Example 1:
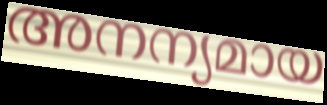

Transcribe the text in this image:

അനന്യമായ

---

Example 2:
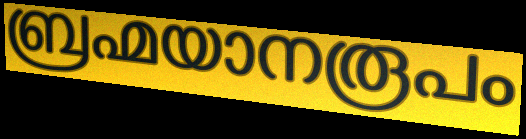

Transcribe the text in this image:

ബ്രഹ്മയാനരൂപം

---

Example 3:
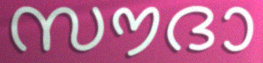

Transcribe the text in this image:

സൗദാ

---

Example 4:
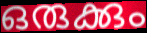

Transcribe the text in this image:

ഒരുക്കും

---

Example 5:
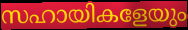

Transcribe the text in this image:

സഹായികളേയും